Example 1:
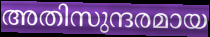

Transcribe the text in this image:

അതിസുന്ദരമായ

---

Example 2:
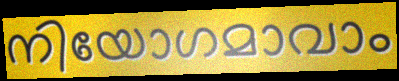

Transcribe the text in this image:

നിയോഗമാവാം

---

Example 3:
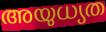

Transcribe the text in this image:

അയുധ്യത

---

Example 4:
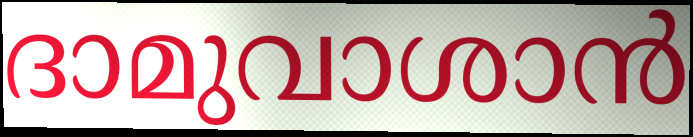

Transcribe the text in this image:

ദാമുവാശാൻ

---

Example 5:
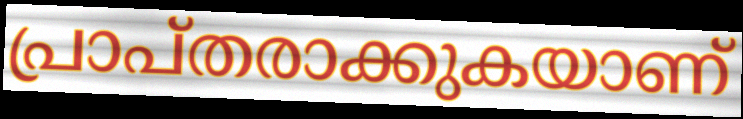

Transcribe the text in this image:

പ്രാപ്തരാക്കുകയാണ്